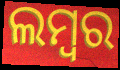
ଲମ୍ବର